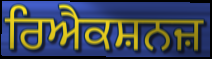
ਰਿਐਕਸ਼ਨਜ਼